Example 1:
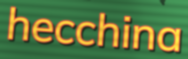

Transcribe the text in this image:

hecchina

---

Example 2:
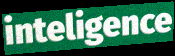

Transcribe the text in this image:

inteligence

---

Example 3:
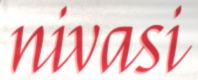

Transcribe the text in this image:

nivasi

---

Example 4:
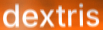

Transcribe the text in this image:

dextris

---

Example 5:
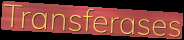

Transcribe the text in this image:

Transferases